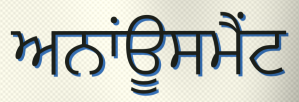
ਅਨਾਂਊਸਮੈਂਟ